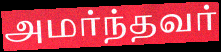
அமர்ந்தவர்